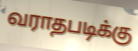
வராதபடிக்கு